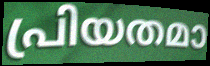
പ്രിയതമാ